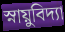
স্নায়ুবিদ্যা